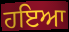
ਹਇਆ